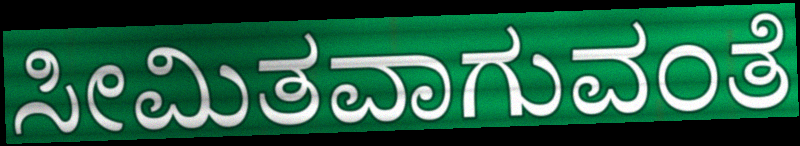
ಸೀಮಿತವಾಗುವಂತೆ